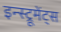
इन्स्ट्रूमेंट्स